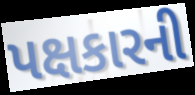
પક્ષકારની